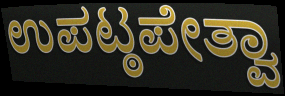
ಉಪಟ್ಠಪೇತ್ವಾ